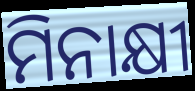
ମିନାକ୍ଷୀ